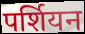
पर्शियन